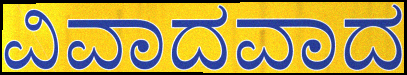
ವಿವಾದವಾದ